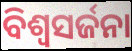
ବିଶ୍ଵସର୍ଜନା